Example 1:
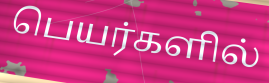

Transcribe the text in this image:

பெயர்களில்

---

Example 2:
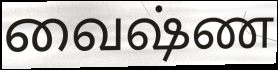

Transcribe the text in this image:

வைஷ்ண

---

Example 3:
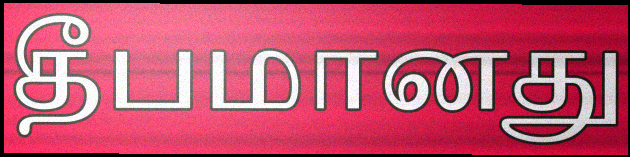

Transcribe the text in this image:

தீபமானது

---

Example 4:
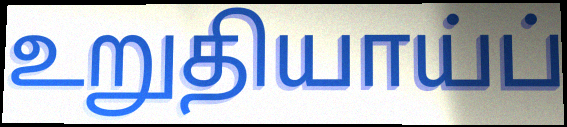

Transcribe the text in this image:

உறுதியாய்ப்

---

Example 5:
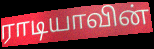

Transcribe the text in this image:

ராடியாவின்